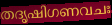
തദൃഷിഗണവചഃ